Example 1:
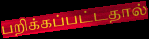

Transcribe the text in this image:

பறிக்கப்பட்டதால்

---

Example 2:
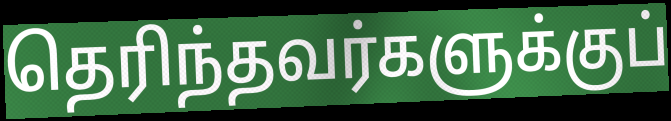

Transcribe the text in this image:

தெரிந்தவர்களுக்குப்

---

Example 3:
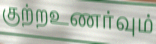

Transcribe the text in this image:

குற்றஉணர்வும்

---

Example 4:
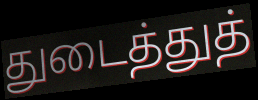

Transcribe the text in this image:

துடைத்துத்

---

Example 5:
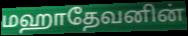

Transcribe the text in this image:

மஹாதேவனின்